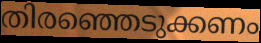
തിരഞ്ഞെടുക്കണം